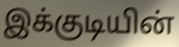
இக்குடியின்